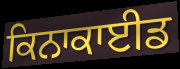
ਕਿਨਾਕਾਈਡ